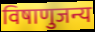
विषाणुजन्य